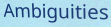
Ambiguities